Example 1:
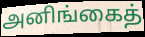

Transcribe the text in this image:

அனிங்கைத்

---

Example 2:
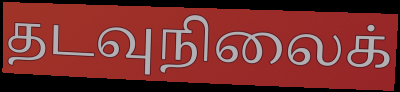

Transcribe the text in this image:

தடவுநிலைக்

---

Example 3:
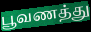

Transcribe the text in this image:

பூவணத்து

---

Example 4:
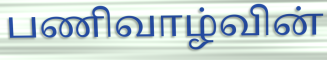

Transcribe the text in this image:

பணிவாழ்வின்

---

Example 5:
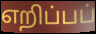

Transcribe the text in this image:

எறிப்பப்